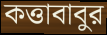
কত্তাবাবুর